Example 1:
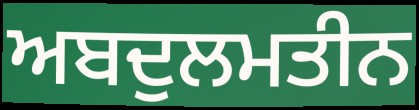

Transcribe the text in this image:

ਅਬਦੁਲਮਤੀਨ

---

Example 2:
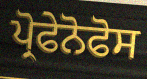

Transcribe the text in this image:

ਪ੍ਰੋਫੇਨੋਫੋਸ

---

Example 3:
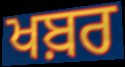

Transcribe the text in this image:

ਖਬ਼ਰ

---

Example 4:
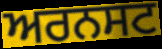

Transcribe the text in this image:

ਅਰਨਸਟ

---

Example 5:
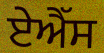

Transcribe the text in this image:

ਏਐੱਸ